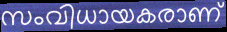
സംവിധായകരാണ്